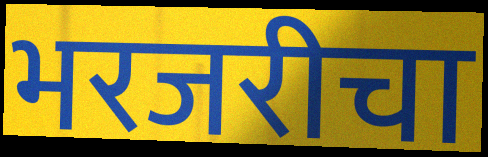
भरजरीचा